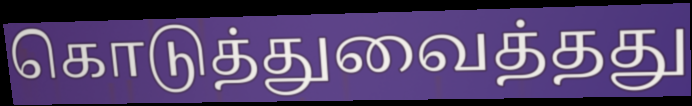
கொடுத்துவைத்தது